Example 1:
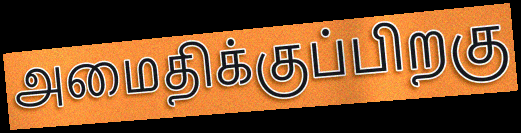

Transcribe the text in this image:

அமைதிக்குப்பிறகு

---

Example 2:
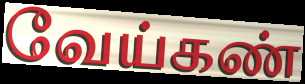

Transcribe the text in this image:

வேய்கண்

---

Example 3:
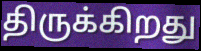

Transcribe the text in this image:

திருக்கிறது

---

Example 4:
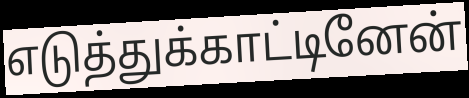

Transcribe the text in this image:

எடுத்துக்காட்டினேன்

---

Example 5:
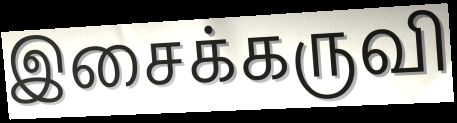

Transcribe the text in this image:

இசைக்கருவி